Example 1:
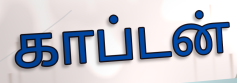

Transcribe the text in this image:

காப்டன்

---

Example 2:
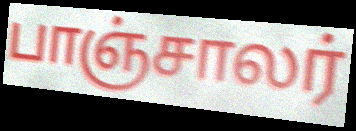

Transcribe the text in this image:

பாஞ்சாலர்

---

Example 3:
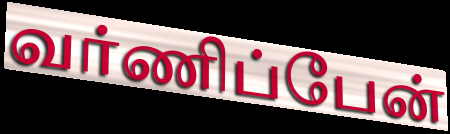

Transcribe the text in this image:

வர்ணிப்பேன்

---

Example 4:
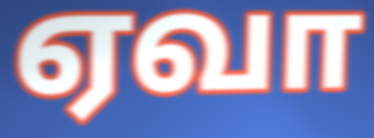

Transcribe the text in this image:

ஏவா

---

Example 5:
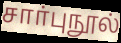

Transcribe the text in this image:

சார்புநூல்